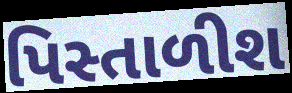
પિસ્તાળીશ